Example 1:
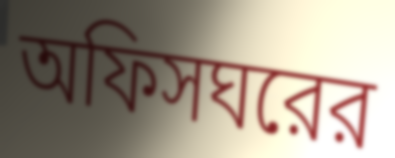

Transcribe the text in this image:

অফিসঘরের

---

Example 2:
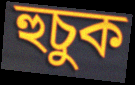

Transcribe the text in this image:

হুচুক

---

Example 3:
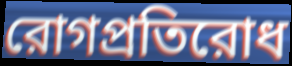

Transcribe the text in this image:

রোগপ্রতিরোধ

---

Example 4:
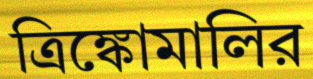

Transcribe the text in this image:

ত্রিঙ্কোমালির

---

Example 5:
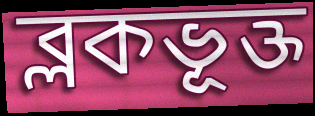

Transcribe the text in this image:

ব্লকভূক্ত